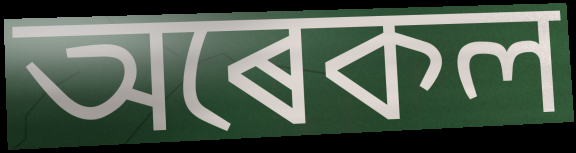
অৰেকল